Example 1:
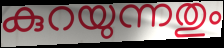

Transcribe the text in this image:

കുറയുന്നതും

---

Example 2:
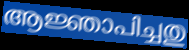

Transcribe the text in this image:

ആജ്ഞാപിച്ചതു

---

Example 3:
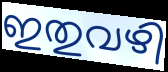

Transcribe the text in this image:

ഇതുവഴി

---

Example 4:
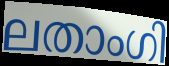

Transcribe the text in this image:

ലതാംഗി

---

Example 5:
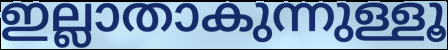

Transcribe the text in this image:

ഇല്ലാതാകുന്നുള്ളൂ